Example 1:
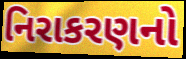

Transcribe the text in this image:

નિરાકરણનો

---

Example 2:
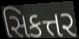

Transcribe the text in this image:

સિકત્તર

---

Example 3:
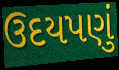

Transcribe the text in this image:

ઉદયપણું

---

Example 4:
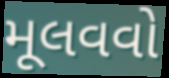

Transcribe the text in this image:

મૂલવવો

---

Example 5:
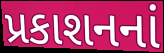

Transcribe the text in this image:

પ્રકાશનનાં